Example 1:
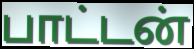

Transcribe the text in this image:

பாட்டன்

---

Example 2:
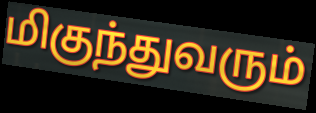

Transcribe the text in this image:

மிகுந்துவரும்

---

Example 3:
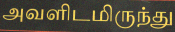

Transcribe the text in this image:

அவளிடமிருந்து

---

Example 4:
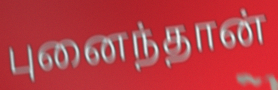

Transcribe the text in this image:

புனைந்தான்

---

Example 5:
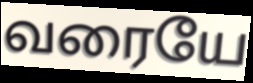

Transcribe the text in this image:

வரையே